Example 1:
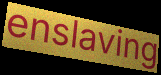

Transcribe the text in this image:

enslaving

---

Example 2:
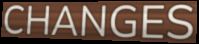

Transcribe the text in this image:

CHANGES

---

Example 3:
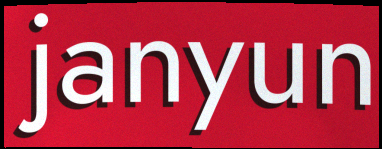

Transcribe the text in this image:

janyun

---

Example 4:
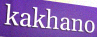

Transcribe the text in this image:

kakhano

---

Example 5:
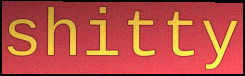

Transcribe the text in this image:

shitty